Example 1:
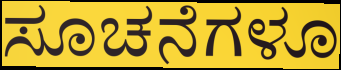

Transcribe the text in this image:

ಸೂಚನೆಗಳೂ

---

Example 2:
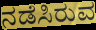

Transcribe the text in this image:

ನಡೆಸಿರುವ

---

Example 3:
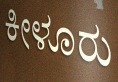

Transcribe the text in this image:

ಕೀಳೂರು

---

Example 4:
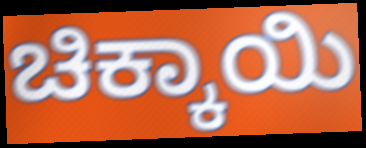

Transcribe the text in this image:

ಚಿಕ್ಕಾಯಿ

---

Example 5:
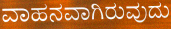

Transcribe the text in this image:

ವಾಹನವಾಗಿರುವುದು